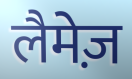
लैमेज़